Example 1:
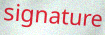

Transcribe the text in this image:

signature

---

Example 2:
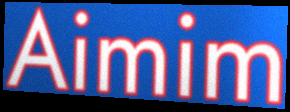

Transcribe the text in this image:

Aimim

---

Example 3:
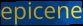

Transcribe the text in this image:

epicene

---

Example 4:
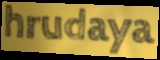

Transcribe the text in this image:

hrudaya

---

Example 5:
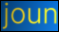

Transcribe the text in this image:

joun